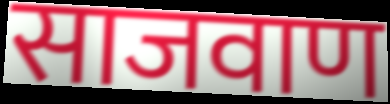
साजवाण